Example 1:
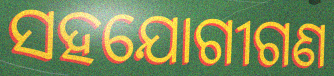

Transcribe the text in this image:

ସହଯୋଗୀଗଣ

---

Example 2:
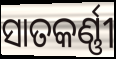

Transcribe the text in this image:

ସାତକର୍ଣ୍ଣୀ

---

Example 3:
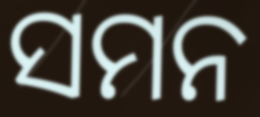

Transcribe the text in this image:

ସମନ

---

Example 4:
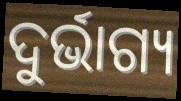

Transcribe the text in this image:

ଦୁର୍ଭାଗ୍ୟ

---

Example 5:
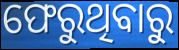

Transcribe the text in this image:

ଫେରୁଥିବାରୁ